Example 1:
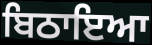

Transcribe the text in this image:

ਬਿਠਾਇਆ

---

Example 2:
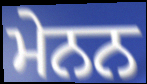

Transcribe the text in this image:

ਮੇਨਨ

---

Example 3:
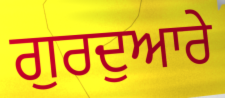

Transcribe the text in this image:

ਗੁਰਦੁਆਰੇ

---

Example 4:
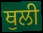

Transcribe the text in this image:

ਥੁਲੀ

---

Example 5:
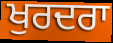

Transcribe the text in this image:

ਖੁਰਦਰਾ